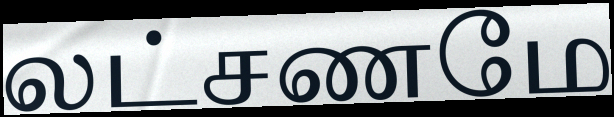
லட்சணமே